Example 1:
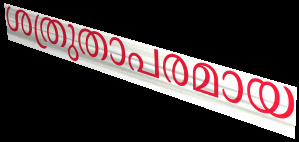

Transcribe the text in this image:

ശത്രുതാപരമായ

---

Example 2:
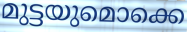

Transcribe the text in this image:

മുട്ടയുമൊക്കെ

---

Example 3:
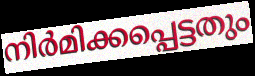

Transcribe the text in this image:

നിർമിക്കപ്പെട്ടതും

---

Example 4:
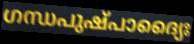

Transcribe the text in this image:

ഗന്ധപുഷ്പാദ്യൈഃ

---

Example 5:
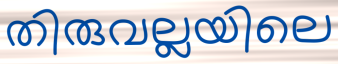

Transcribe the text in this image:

തിരുവല്ലയിലെ